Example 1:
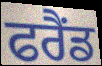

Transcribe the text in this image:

ਫਰੈਂਡ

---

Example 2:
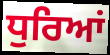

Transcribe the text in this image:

ਧੁਰਿਆਂ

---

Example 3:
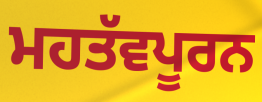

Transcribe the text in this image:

ਮਹਤੱਵਪੂਰਨ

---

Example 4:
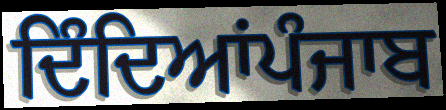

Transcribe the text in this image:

ਦਿੰਦਿਆਂਪੰਜਾਬ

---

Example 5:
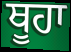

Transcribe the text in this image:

ਥੂਹਾ